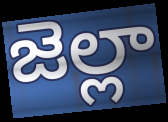
జెల్లా